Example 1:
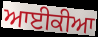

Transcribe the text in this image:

ਆਈਕੀਆ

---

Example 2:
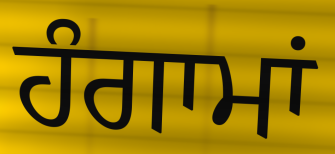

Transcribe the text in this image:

ਹੰਗਾਮਾਂ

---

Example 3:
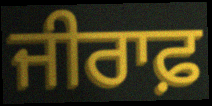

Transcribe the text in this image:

ਜੀਰਾਫ਼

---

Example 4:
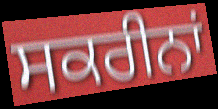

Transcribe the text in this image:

ਸਕਰੀਨਾਂ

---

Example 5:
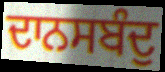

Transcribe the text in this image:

ਦਾਨਸਬੰਦੁ